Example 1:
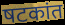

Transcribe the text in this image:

षटकांत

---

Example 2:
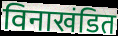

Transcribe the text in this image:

विनाखंडित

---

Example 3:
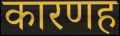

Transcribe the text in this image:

कारणह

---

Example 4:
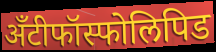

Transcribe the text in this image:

अँटीफॉस्फोलिपिड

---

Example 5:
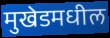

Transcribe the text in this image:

मुखेडमधील